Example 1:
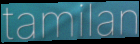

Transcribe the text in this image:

tamilan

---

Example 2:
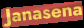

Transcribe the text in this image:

Janasena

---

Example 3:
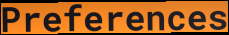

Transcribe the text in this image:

Preferences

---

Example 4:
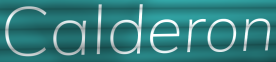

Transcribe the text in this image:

Calderon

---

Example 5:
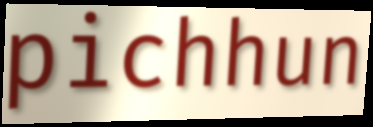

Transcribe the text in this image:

pichhun